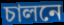
চালনে